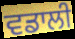
ਵਡਾਲੀ